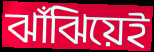
ঝাঁঝিয়েই